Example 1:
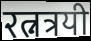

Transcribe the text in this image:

रत्नत्रयी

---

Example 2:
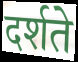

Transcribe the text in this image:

दर्शते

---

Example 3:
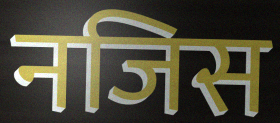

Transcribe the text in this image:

नजिस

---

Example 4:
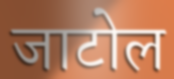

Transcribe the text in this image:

जाटोल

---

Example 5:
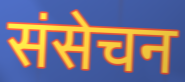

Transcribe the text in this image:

संसेचन